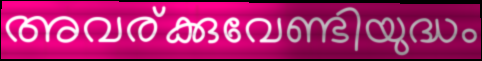
അവര്ക്കുവേണ്ടിയുദ്ധം